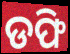
ଡଫି